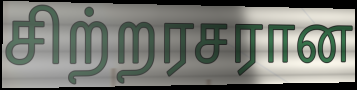
சிற்றரசரான